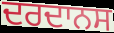
ਦਰਦਾਨਸ